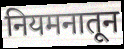
नियमनातून